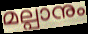
മല്പാനും